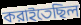
করাইতেছিল